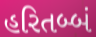
હરિતબ્બં